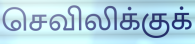
செவிலிக்குக்